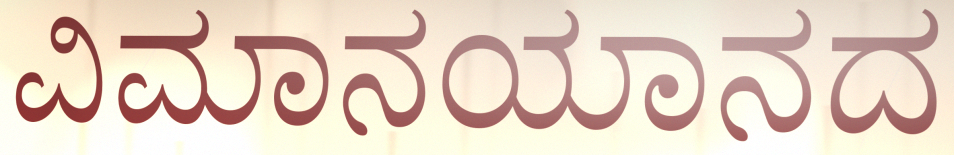
ವಿಮಾನಯಾನದ